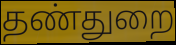
தண்துறை